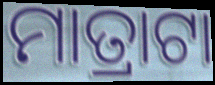
ମାତ୍ରାଟା